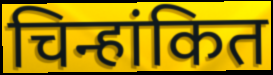
चिन्हांकित